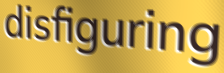
disfiguring